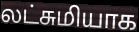
லட்சுமியாக